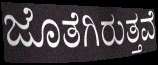
ಜೊತೆಗಿರುತ್ತವೆ